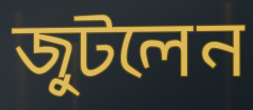
জুটলেন